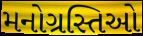
મનોગ્રસ્તિઓ